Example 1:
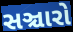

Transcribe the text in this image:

સઞ્ચારો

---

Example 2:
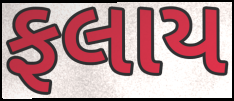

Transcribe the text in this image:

ફલાય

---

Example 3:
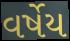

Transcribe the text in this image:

વર્ષેય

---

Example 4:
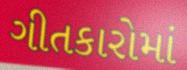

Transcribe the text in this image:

ગીતકારોમાં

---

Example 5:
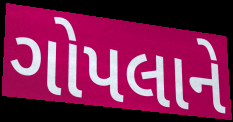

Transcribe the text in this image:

ગોપલાને